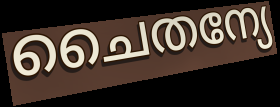
ചൈതന്യേ